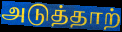
அடுத்தாற்